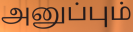
அனுப்பும்